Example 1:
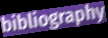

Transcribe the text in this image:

bibliography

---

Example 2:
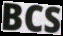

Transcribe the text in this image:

BCS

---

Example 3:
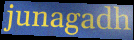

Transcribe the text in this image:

junagadh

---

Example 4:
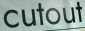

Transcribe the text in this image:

cutout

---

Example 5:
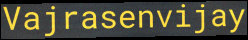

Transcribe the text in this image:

Vajrasenvijay